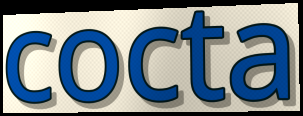
cocta